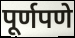
पूर्णपणे